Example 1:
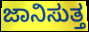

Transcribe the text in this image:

ಜಾನಿಸುತ್ತ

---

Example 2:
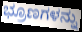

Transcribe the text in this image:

ಭ್ರೂಣಗಳನ್ನು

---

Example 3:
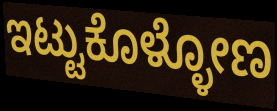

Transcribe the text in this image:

ಇಟ್ಟುಕೊಳ್ಳೋಣ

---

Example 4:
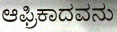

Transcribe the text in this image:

ಆಫ್ರಿಕಾದವನು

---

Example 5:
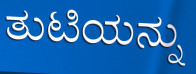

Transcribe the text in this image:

ತುಟಿಯನ್ನು